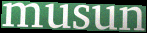
musun